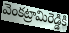
వెంకట్రామిరెడ్డికి